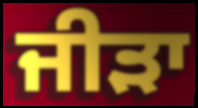
ਜੀੜਾ